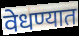
वेधण्यात